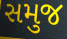
સમુજ